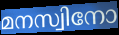
മനസ്വിനോ